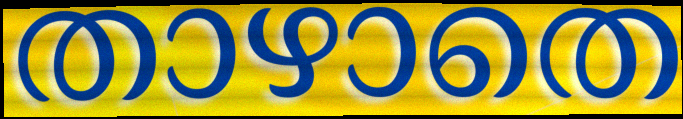
താഴാതെ